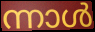
ന്നാൾ